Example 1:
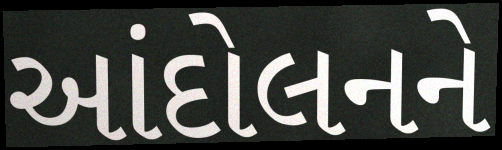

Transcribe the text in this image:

આંદોલનને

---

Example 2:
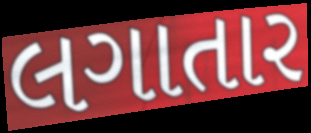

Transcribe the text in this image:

લગાતાર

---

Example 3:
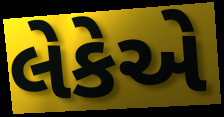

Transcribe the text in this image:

લેકેએ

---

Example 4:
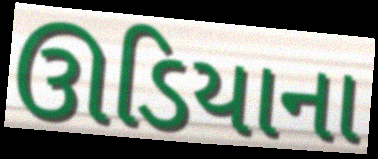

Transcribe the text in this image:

ઊડિયાના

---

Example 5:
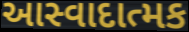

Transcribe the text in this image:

આસ્વાદાત્મક